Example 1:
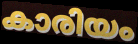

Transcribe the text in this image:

കാരിയം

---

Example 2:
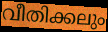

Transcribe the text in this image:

വീതിക്കലും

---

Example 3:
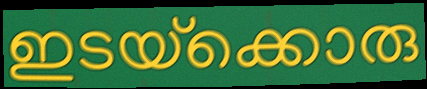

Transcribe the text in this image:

ഇടയ്‌ക്കൊരു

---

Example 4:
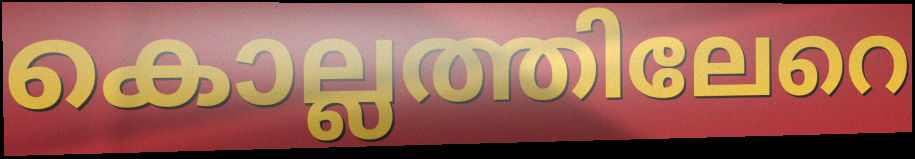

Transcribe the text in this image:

കൊല്ലത്തിലേറെ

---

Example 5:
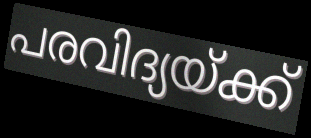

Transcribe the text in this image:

പരവിദ്യയ്ക്ക്